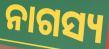
ନାଗସ୍ୟ